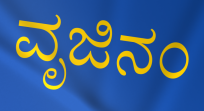
ವೃಜಿನಂ